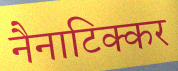
नैनाटिक्कर